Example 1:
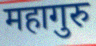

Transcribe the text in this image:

महागुरु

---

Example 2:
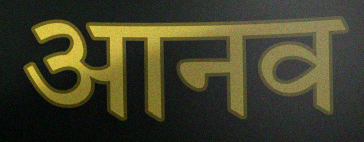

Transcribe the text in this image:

आनव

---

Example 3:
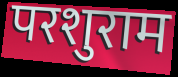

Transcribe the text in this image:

परशुराम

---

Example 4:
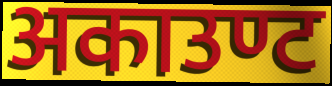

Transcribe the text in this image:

अकाउण्ट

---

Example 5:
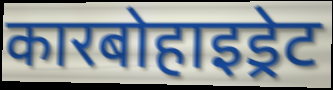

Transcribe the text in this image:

कारबोहाइड्रेट